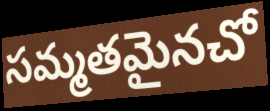
సమ్మతమైనచో